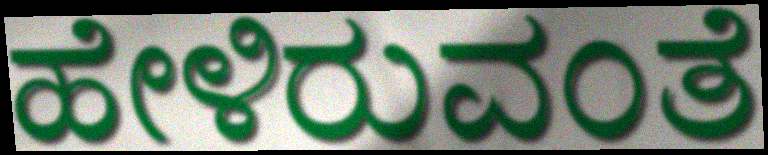
ಹೇಳಿರುವಂತೆ